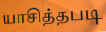
யாசித்தபடி